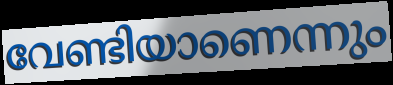
വേണ്ടിയാണെന്നും